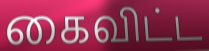
கைவிட்ட